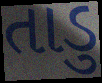
તાડુ